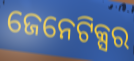
ଜେନେଟିକ୍ସର